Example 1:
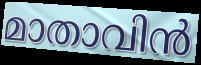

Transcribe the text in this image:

മാതാവിൻ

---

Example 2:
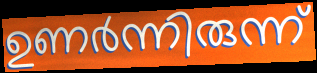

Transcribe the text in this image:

ഉണർന്നിരുന്ന്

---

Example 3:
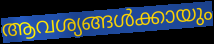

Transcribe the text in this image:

ആവശ്യങ്ങൾക്കായും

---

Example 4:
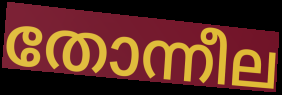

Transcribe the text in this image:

തോന്നീല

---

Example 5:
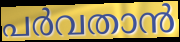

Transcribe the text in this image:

പർവതാൻ